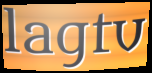
lagtu